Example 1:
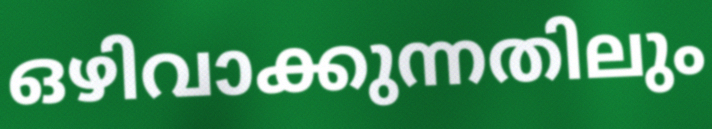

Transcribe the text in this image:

ഒഴിവാക്കുന്നതിലും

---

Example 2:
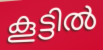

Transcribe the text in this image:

കൂട്ടിൽ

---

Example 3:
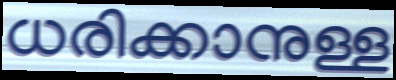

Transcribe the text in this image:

ധരിക്കാനുള്ള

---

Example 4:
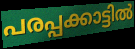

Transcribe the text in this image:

പരപ്പക്കാട്ടിൽ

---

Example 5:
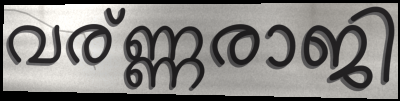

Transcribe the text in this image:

വര്ണ്ണരാജി